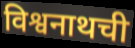
विश्वनाथची